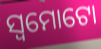
ସ୍ୱମୋଟୋ